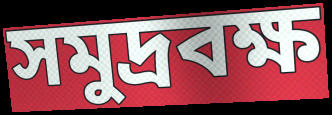
সমুদ্রবক্ষ